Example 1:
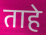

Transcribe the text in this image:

ताहे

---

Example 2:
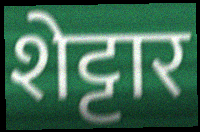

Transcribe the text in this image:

शेट्टार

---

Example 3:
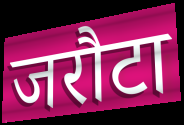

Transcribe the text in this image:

जरौटा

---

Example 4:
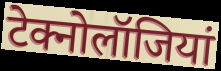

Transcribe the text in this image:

टेक्नोलॉजियां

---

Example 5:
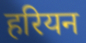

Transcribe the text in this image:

हरियन